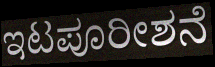
ಇಟಪೂರೀಶನೆ